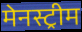
मेनस्ट्रीम